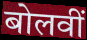
बोलवीं